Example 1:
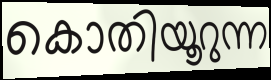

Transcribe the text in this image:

കൊതിയൂറുന്ന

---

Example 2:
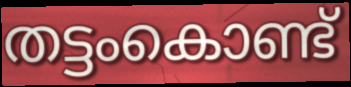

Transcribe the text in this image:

തട്ടംകൊണ്ട്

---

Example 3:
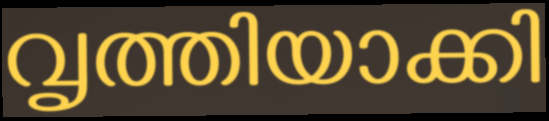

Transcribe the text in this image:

വൃത്തിയാക്കി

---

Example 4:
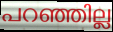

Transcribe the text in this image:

പറഞ്ഞില്ല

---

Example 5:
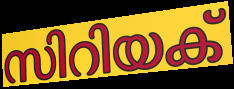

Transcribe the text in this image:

സിറിയക്